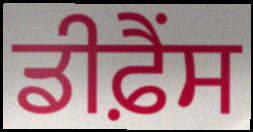
ਡੀਫ਼ੈਂਸ